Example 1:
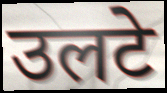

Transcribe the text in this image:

उलटे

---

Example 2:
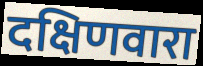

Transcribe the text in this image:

दक्षिणवारा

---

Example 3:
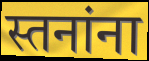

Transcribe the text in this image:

स्तनांना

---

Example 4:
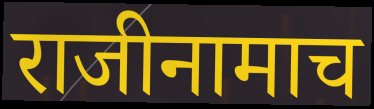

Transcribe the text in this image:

राजीनामाच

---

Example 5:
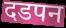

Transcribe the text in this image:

दडपन